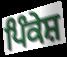
ਪਿੰਕੇਸ਼